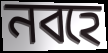
নবহে